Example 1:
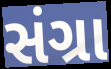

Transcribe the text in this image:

સંગ્રા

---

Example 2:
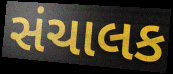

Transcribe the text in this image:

સંચાલક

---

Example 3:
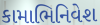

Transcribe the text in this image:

કામાભિનિવેશ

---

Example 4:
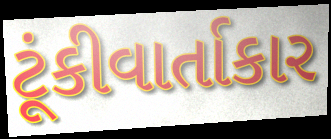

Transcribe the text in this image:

ટૂંકીવાર્તાકાર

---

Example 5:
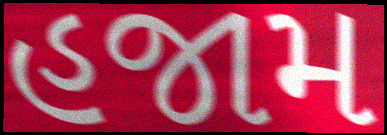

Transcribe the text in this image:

હજામ